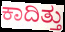
ಕಾದಿತ್ತು